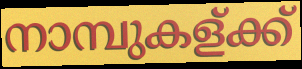
നാമ്പുകള്ക്ക്